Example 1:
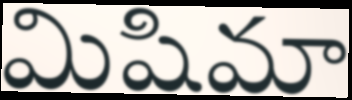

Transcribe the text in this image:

మిషిమా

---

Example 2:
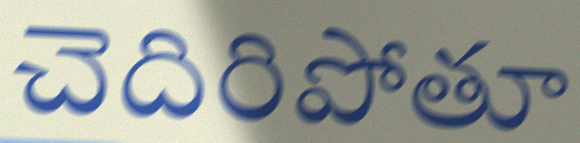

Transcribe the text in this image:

చెదిరిపోతూ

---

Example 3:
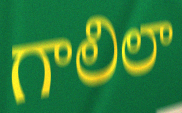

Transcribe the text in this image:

గాలిలా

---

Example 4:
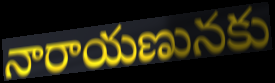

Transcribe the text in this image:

నారాయణునకు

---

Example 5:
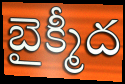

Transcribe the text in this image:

బైక్మీద